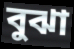
বুঝা